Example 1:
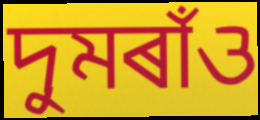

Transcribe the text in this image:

দুমৰাঁও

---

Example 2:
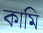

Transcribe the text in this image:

কামি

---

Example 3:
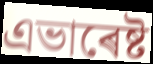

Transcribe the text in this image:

এভাৰেষ্ট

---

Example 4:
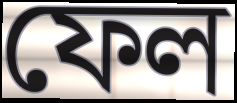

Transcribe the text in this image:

ফেল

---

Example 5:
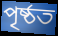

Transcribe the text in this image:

পৃষ্ঠত